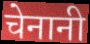
चेनानी